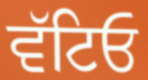
ਵੱਟਿਓ